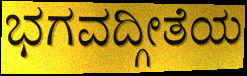
ಭಗವದ್ಗೀತೆಯ